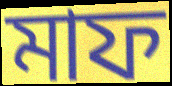
মাফ